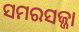
ସମରସଜ୍ଜା